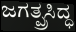
ಜಗತ್ಪ್ರಸಿದ್ಧ